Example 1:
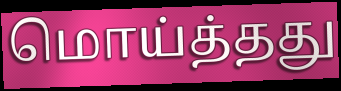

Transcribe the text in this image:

மொய்த்தது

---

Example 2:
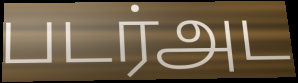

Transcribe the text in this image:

படர்அட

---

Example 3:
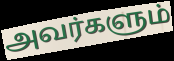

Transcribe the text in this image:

அவர்களும்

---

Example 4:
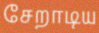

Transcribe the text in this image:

சேறாடிய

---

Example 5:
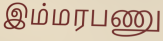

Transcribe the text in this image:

இம்மரபணு